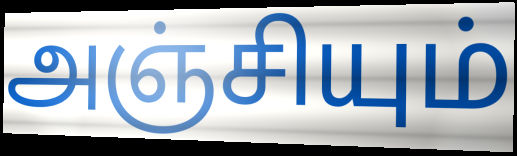
அஞ்சியும்